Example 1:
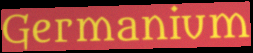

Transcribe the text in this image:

Germanium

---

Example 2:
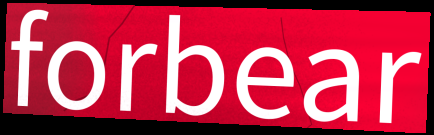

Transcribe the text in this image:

forbear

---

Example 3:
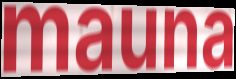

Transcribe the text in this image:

mauna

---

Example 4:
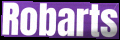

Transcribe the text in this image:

Robarts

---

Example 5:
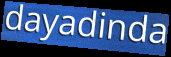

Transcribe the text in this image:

dayadinda